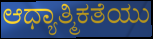
ಆಧ್ಯಾತ್ಮಿಕತೆಯು